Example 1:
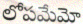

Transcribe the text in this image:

లోపమేమో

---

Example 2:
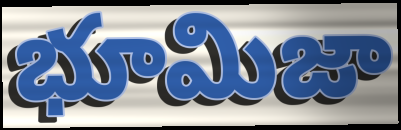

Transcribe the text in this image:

భూమిజా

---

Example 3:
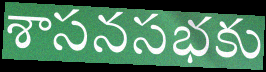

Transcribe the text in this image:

శాసనసభకు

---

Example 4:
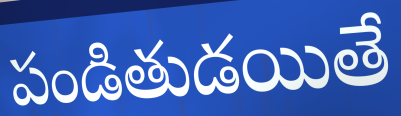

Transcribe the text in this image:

పండితుడయితే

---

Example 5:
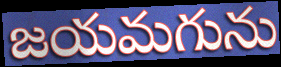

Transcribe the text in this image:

జయమగును